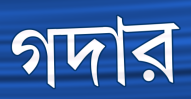
গদার